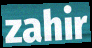
zahir